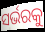
ସର୍ଭରକୁ